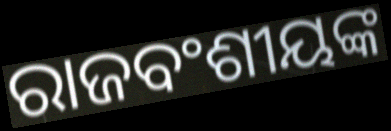
ରାଜବଂଶୀୟଙ୍କ